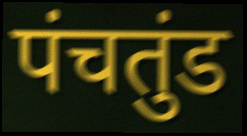
पंचतुंड